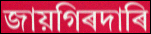
জায়গিৰদাৰি